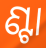
ଣ୍ଟା